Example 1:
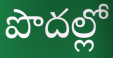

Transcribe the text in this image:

పొదల్లో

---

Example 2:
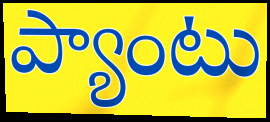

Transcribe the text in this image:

ప్యాంటు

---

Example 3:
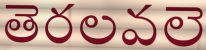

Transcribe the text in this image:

తెరలవలె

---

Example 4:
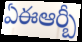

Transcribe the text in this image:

ఏఈఆర్బీ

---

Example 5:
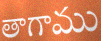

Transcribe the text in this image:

తాగాము